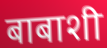
बाबाशी